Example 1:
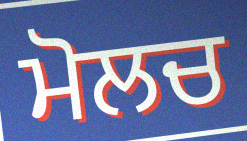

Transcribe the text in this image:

ਮੋਲਚ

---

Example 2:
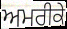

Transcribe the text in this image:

ਅਮਰੀਕੇ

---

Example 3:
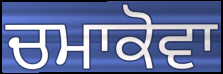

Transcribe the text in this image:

ਚਮਾਕੋਵਾ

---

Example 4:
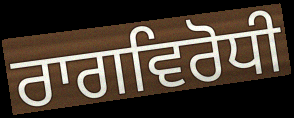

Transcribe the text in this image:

ਰਾਗਵਿਰੋਧੀ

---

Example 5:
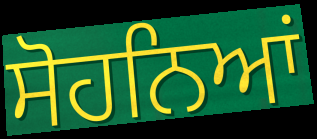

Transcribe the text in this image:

ਸੋਹਨਿਆਂ